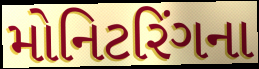
મોનિટરિંગના